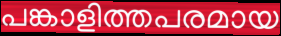
പങ്കാളിത്തപരമായ